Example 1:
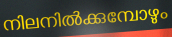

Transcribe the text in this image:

നിലനിൽക്കുമ്പോഴും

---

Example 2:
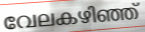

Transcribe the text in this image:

വേലകഴിഞ്ഞ്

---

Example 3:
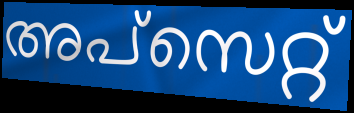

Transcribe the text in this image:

അപ്സെറ്റ്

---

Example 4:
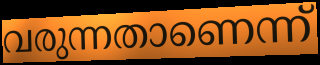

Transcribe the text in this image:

വരുന്നതാണെന്ന്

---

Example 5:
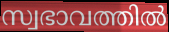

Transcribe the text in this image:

സ്വഭാവത്തിൽ